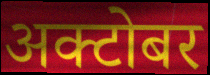
अक्टोबर